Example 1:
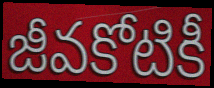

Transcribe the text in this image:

జీవకోటికీ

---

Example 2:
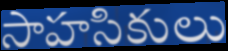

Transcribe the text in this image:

సాహసికులు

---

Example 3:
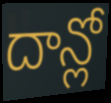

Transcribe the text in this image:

దాన్లో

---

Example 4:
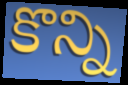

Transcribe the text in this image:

కొన్ని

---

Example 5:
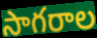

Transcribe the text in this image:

సాగరాల